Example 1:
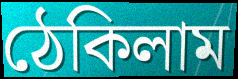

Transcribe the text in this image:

ঠেকিলাম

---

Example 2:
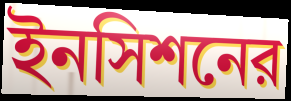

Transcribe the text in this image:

ইনসিশনের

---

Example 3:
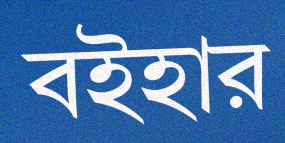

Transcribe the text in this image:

বইহার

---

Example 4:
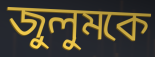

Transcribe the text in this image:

জুলুমকে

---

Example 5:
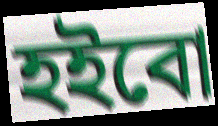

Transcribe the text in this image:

হইবো